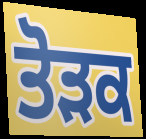
ਤੋੜਕ